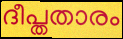
ദീപ്തതാരം